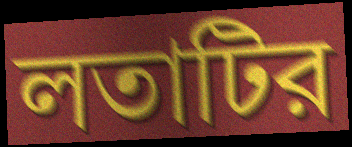
লতাটির